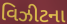
વિઝીટના